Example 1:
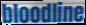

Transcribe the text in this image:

bloodline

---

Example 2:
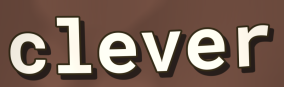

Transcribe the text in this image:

clever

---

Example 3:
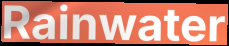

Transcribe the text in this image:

Rainwater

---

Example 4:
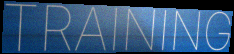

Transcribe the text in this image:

TRAINING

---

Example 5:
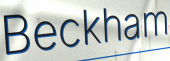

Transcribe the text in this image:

Beckham